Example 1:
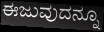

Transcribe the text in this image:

ಈಜುವುದನ್ನೂ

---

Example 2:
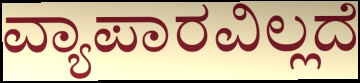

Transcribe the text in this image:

ವ್ಯಾಪಾರವಿಲ್ಲದೆ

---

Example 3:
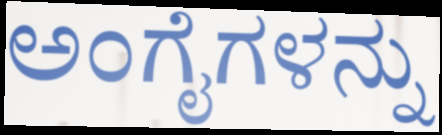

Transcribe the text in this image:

ಅಂಗೈಗಳನ್ನು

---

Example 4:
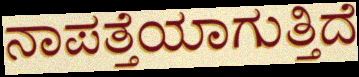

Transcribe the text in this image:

ನಾಪತ್ತೆಯಾಗುತ್ತಿದೆ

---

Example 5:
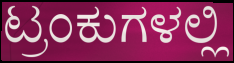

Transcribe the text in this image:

ಟ್ರಂಕುಗಳಲ್ಲಿ